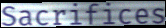
Sacrifices